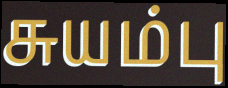
சுயம்பு